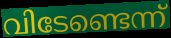
വിടേണ്ടെന്ന്